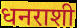
धनराशी